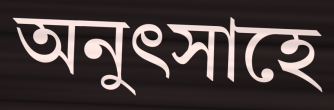
অনুৎসাহে